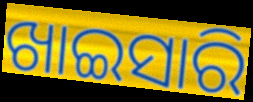
ଖାଇସାରି